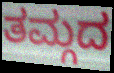
ತಮ್ಗದ